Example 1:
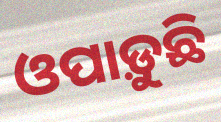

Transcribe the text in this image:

ଓପାଡ଼ୁଛି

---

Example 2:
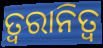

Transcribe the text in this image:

ତ୍ୱରାନିତ୍ଵ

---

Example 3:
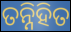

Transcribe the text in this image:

ତନ୍ନିହିତ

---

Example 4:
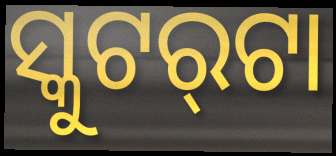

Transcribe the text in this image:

ସ୍କୁଟର୍‌ଟା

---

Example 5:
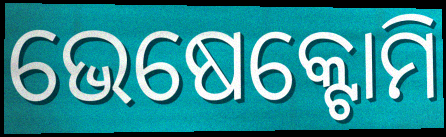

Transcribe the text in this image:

ଭେଷେକ୍ଟୋମି